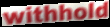
withhold